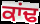
ਕਾਂਢ